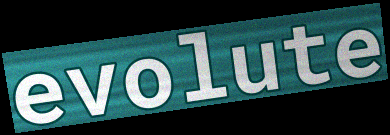
evolute